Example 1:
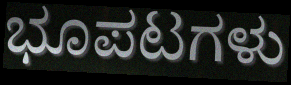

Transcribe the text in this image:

ಭೂಪಟಗಳು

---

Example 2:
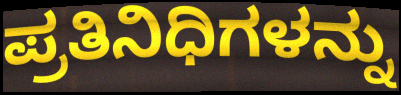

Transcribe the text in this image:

ಪ್ರತಿನಿಧಿಗಳನ್ನು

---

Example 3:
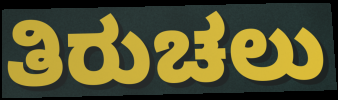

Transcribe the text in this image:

ತಿರುಚಲು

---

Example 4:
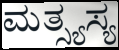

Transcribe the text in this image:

ಮತ್ಸ್ಯಸ್ಯ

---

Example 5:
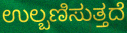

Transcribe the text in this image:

ಉಲ್ಬಣಿಸುತ್ತದೆ